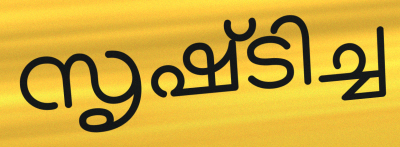
സൃഷ്‌ടിച്ച